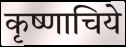
कृष्णाचिये